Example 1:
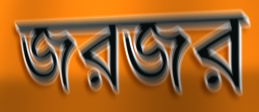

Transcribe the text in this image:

জরজর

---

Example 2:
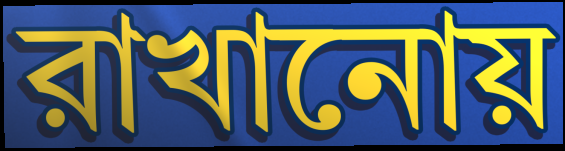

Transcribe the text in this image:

রাখানোয়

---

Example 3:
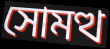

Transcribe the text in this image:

সোমত্থ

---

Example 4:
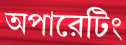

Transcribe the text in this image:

অপারেটিং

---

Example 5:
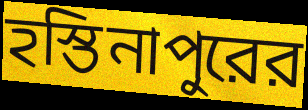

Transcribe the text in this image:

হস্তিনাপুরের